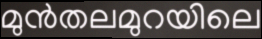
മുൻതലമുറയിലെ